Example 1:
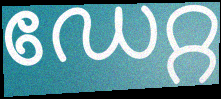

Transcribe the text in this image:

ഡേറ്റ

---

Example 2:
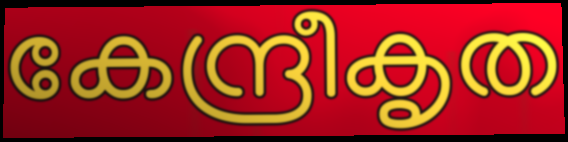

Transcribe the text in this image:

കേന്ദ്രീകൃത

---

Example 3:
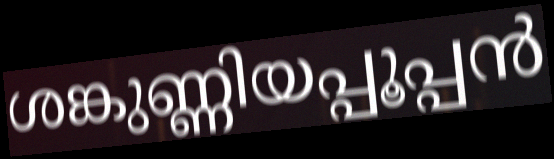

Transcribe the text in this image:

ശങ്കുണ്ണിയപ്പൂപ്പൻ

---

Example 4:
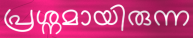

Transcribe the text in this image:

പ്രശ്നമായിരുന്ന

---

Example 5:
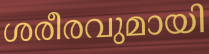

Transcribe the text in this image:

ശരീരവുമായി